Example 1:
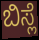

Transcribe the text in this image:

ಬಿಸ್ಲೆ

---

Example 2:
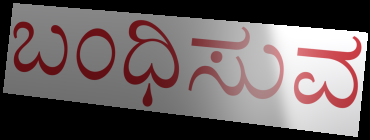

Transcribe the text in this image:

ಬಂಧಿಸುವ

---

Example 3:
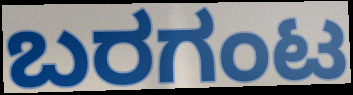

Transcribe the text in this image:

ಬರಗಂಟ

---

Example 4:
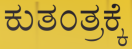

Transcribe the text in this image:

ಕುತಂತ್ರಕ್ಕೆ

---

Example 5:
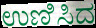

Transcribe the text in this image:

ಉಣಿಸಿದ